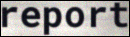
report